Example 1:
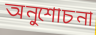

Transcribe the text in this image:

অনুশোচনা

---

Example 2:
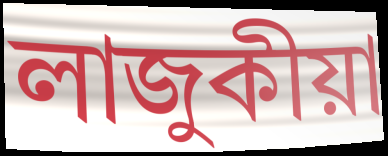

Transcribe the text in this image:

লাজুকীয়া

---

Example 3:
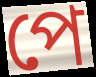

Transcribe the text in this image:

পে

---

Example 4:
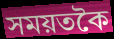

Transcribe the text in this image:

সময়তকৈ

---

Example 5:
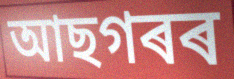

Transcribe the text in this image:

আছগৰৰ